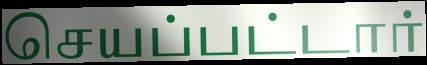
செயப்பட்டார்